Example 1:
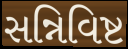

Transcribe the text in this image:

સન્નિવિષ્ટ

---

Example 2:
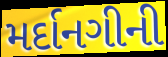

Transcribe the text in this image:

મર્દાનગીની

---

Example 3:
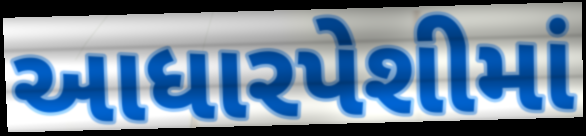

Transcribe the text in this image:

આધારપેશીમાં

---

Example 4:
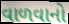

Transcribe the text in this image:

વાળવાનો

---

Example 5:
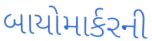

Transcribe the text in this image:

બાયોમાર્કરની